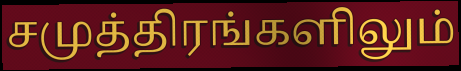
சமுத்திரங்களிலும்